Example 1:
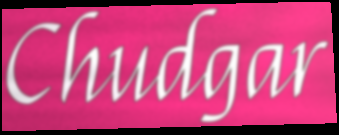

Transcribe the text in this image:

Chudgar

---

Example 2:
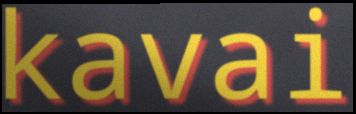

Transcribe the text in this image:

kavai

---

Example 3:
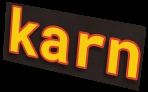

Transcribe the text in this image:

karn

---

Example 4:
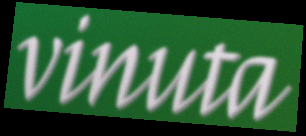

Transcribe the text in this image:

vinuta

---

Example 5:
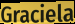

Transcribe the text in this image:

Graciela